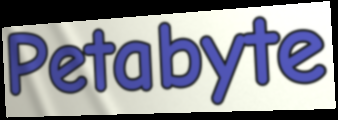
Petabyte